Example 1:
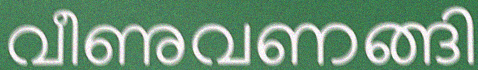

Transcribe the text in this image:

വീണുവണങ്ങി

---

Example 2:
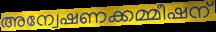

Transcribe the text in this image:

അന്വേഷണക്കമ്മീഷന്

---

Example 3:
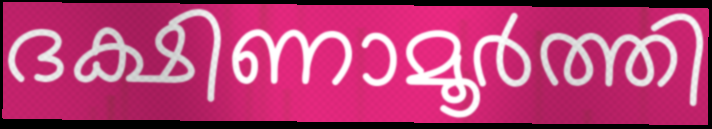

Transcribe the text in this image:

ദക്ഷിണാമൂർത്തി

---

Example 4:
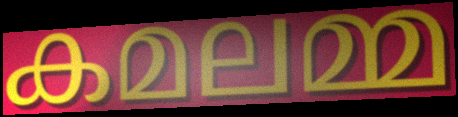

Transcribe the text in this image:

കമലമ്മ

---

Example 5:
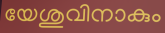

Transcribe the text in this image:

യേശുവിനാകും